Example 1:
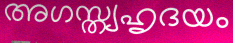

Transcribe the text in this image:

അഗസ്ത്യഹൃദയം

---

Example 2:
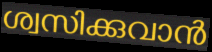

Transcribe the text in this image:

ശ്വസിക്കുവാൻ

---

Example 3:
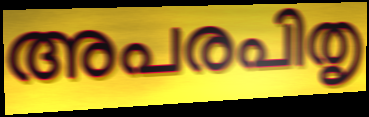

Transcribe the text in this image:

അപരപിതൃ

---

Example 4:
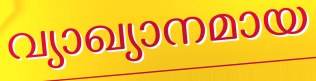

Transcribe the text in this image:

വ്യാഖ്യാനമായ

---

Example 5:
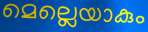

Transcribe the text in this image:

മെല്ലെയാകും